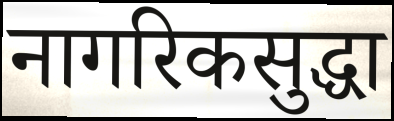
नागरिकसुद्धा